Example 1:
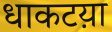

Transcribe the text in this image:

धाकटय़ा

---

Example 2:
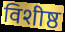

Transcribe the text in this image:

विशीष्ठ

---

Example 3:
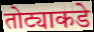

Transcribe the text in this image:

तोट्याकडे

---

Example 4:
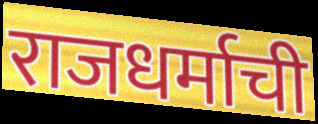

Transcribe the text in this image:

राजधर्माची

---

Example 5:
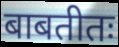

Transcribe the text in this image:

बाबतीतः